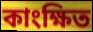
কাংক্ষিত